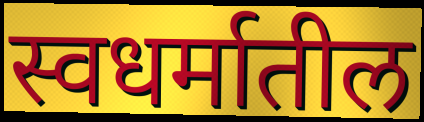
स्वधर्मातील